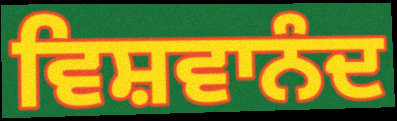
ਵਿਸ਼ਵਾਨੰਦ